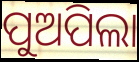
ପୁଅପିଲା